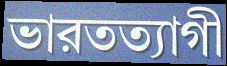
ভারতত্যাগী